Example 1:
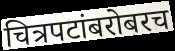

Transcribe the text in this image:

चित्रपटांबरोबरच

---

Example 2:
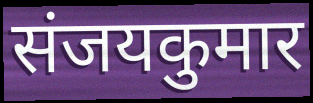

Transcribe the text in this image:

संजयकुमार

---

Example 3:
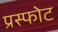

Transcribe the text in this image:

प्रस्फोट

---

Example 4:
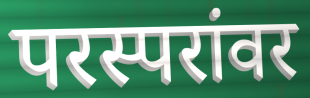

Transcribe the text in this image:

परस्परांवर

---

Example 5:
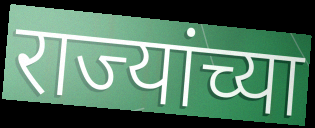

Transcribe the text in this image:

राज्यांच्या